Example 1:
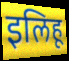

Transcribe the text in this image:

इलिहू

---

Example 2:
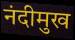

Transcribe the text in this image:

नंदीमुख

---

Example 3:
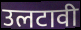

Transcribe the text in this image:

उलटावी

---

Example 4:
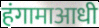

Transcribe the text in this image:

हंगामाआधी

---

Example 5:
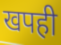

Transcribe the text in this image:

खपही